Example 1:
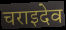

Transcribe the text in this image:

चराइदेव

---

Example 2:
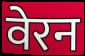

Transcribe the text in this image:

वेरन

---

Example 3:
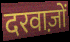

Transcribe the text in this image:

दरवाज़ों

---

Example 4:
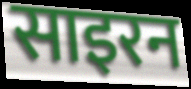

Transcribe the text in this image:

साइरन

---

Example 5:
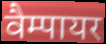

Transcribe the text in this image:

वैम्पायर